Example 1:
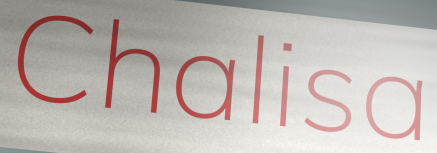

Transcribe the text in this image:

Chalisa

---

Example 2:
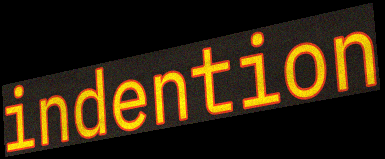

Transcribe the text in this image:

indention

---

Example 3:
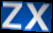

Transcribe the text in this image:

ZX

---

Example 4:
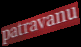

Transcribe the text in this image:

patravanu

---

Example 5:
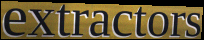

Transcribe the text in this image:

extractors